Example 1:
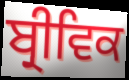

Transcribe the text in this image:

ਬ੍ਰੀਵਿਕ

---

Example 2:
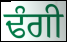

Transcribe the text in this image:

ਢੰਗੀ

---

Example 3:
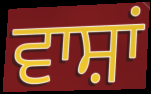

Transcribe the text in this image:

ਵਾਸ਼ਾਂ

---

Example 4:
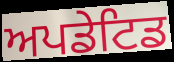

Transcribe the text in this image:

ਅਪਡੇਟਿਡ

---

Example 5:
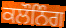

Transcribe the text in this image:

ਕਲੌਨਿੰਗ